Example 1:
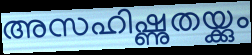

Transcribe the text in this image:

അസഹിഷ്ണുതയ്ക്കും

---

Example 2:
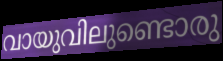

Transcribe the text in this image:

വായുവിലുണ്ടൊരു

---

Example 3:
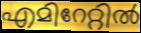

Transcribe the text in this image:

എമിറേറ്റിൽ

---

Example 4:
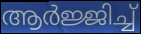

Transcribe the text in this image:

ആർജ്ജിച്ച്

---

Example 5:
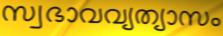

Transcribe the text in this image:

സ്വഭാവവ്യത്യാസം